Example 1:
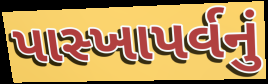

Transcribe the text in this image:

પાસ્ખાપર્વનું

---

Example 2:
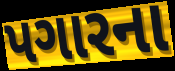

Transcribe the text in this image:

પગારના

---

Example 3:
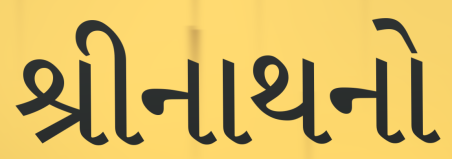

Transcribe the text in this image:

શ્રીનાથનો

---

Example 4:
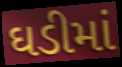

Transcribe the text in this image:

ઘડીમાં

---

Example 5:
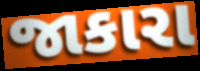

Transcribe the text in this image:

જાકારા